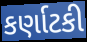
કર્ણાટકી